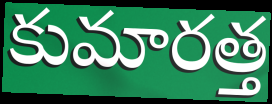
కుమారత్త